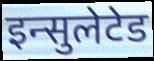
इन्सुलेटेड